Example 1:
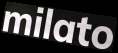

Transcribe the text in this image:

milato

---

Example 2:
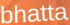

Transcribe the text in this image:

bhatta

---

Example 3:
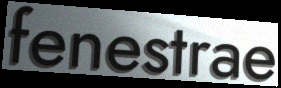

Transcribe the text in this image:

fenestrae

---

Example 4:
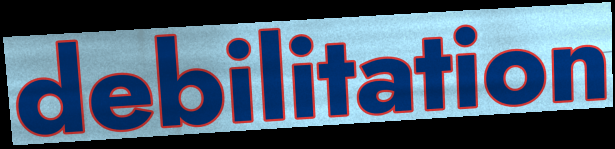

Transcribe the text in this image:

debilitation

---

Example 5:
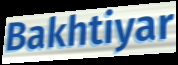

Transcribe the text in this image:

Bakhtiyar